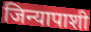
जिन्यापाशी